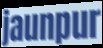
jaunpur